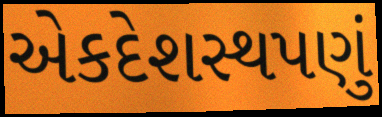
એકદેશસ્થપણું